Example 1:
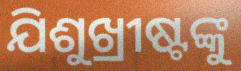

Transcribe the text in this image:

ଯିଶୁଖ୍ରୀଷ୍ଟଙ୍କୁ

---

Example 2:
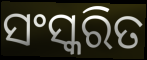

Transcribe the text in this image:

ସଂସ୍କରିତ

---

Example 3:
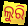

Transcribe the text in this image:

ଲୁରି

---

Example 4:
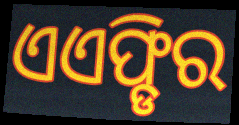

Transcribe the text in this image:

ଏଏଫ୍ଡିର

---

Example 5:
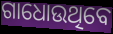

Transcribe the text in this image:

ଗାଧୋଉଥିବେ